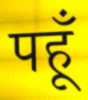
पहूँ